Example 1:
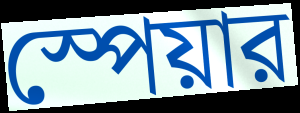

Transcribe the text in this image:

স্পেয়ার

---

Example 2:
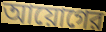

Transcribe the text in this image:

আয়োগের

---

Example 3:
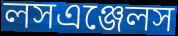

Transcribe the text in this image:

লসএঞ্জেলস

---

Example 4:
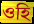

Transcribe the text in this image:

ওহি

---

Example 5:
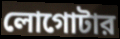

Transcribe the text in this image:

লোগোটার